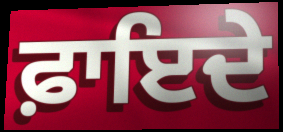
ਫ਼ਾਇਦੇ